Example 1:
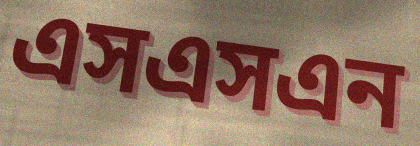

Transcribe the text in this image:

এসএসএন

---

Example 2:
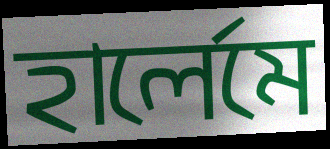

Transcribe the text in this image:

হার্লেমে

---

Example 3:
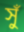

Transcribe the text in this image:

সুঁ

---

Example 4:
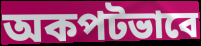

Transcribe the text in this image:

অকপটভাবে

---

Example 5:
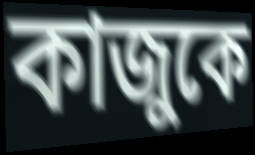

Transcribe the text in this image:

কাজুকে